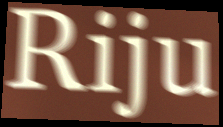
Riju